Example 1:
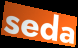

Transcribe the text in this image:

seda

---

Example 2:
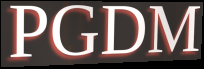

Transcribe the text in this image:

PGDM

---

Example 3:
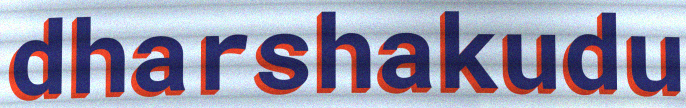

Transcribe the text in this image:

dharshakudu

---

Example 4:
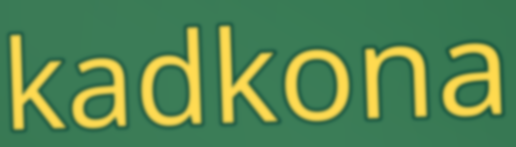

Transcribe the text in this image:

kadkona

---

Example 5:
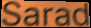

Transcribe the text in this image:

Sarad